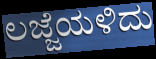
ಲಜ್ಜೆಯಳಿದು